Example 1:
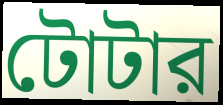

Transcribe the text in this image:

টোটার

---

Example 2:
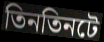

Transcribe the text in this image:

তিনতিনটে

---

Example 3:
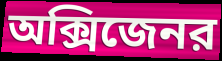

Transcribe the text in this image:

অক্সিজেনর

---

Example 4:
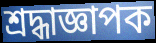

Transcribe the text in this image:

শ্রদ্ধাজ্ঞাপক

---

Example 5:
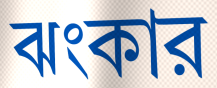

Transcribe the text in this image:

ঝংকার